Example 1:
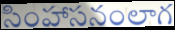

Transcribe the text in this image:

సింహాసనంలాగ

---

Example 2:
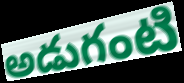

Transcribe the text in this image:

అడుగంటి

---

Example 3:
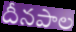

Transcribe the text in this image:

దీనపాల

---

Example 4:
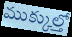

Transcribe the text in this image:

ముక్కుల్తో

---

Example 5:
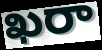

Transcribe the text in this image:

ఖరా